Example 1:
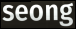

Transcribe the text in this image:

seong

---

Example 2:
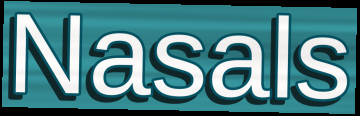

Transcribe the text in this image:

Nasals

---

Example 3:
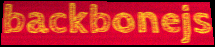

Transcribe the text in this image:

backbonejs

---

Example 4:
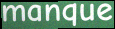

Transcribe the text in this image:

manque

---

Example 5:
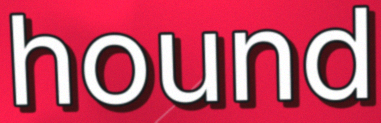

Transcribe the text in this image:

hound